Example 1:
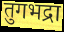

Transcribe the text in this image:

तुगभद्रा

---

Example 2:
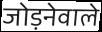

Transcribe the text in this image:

जोड़नेवाले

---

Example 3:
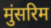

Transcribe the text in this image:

मुंसरिम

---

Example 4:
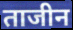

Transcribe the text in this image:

ताजीन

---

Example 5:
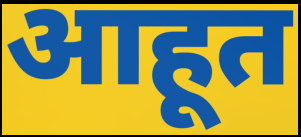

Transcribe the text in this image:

आहूत